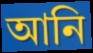
আনি